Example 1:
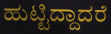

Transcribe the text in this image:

ಹುಟ್ಟಿದ್ದಾದರೆ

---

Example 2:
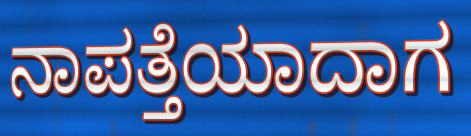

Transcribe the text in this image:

ನಾಪತ್ತೆಯಾದಾಗ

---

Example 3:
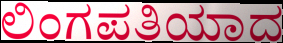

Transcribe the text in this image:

ಲಿಂಗಪತಿಯಾದ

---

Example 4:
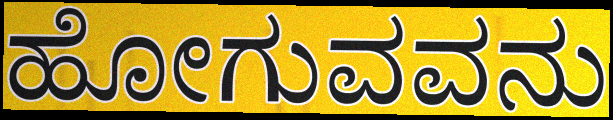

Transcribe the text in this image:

ಹೋಗುವವನು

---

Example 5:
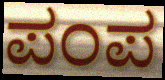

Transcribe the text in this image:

ಪಂಪ